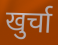
खुर्चा